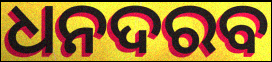
ଧନଦରବ